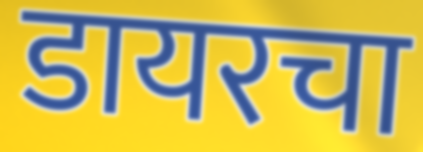
डायरचा